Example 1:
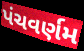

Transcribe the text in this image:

પંચવર્ણમ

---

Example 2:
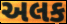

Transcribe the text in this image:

અલક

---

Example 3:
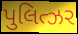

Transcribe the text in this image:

પુલિત્ઝર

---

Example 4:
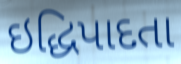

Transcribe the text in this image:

ઇદ્ધિપાદતા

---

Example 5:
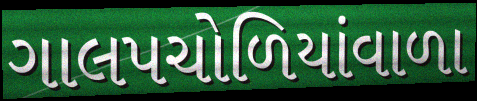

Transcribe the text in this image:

ગાલપચોળિયાંવાળા